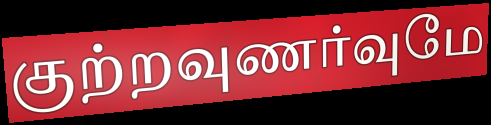
குற்றவுணர்வுமே